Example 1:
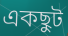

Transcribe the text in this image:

একছুট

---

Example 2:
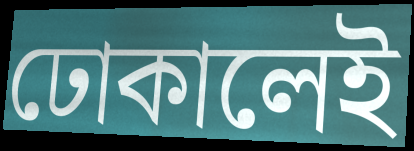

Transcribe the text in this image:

ঢোকালেই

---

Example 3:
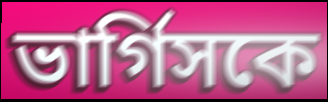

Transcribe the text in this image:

ভার্গিসকে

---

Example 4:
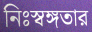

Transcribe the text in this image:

নিঃস্বঙ্গতার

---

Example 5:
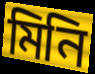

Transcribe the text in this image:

মিনি